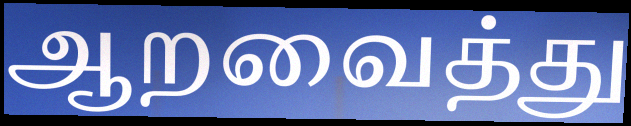
ஆறவைத்து